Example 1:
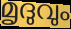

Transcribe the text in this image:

മൃദുവും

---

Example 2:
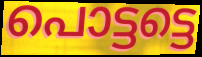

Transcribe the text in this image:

പൊട്ടട്ടെ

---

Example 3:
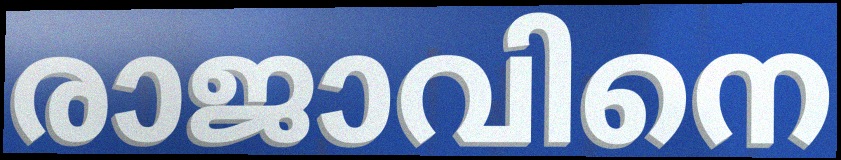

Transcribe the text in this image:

രാജാവിനെ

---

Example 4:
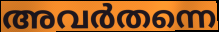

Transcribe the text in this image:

അവർതന്നെ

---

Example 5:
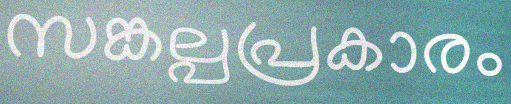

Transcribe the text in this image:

സങ്കല്പപ്രകാരം